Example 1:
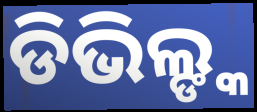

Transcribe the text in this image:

ଡିଭିଲ୍ଙ୍କ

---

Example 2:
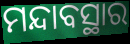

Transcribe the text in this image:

ମନ୍ଦାବସ୍ଥାର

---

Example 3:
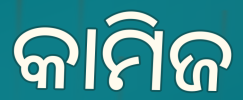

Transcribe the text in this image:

କାମିଜ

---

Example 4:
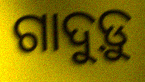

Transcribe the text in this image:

ଗାଦୁଡ଼ୁ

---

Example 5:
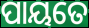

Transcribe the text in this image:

ପାୟତେ